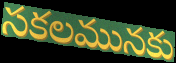
సకలమునకు